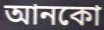
আনকো